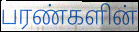
பரண்களின்